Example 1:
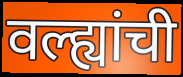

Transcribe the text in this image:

वल्ह्यांची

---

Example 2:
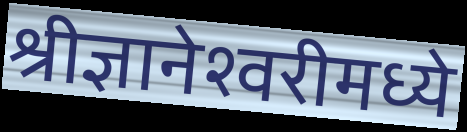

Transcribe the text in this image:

श्रीज्ञानेश्वरीमध्ये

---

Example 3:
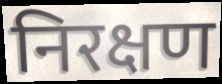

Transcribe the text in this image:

निरक्षण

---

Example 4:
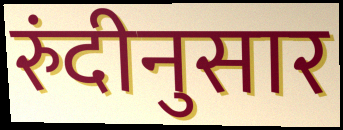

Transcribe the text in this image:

रुंदीनुसार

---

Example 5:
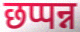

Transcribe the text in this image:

छप्पन्न